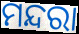
ମନ୍ଦରା